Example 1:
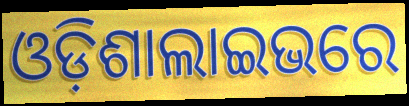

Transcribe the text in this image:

ଓଡ଼ିଶାଲାଇଭରେ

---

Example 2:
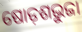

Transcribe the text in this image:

ଷୋଡ଼ଶଭୁଜା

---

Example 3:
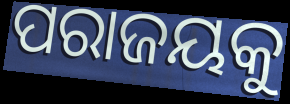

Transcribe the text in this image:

ପରାଜୟକୁ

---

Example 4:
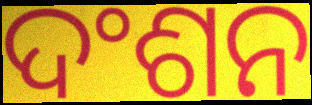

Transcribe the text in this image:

ଦଂଶନ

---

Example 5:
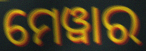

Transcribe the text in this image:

ମେୱାର